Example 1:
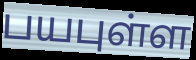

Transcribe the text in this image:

பயபுள்ள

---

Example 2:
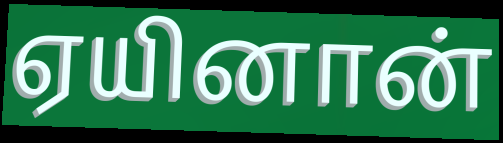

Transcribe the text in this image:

ஏயினான்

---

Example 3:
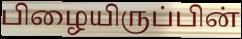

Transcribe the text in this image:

பிழையிருப்பின்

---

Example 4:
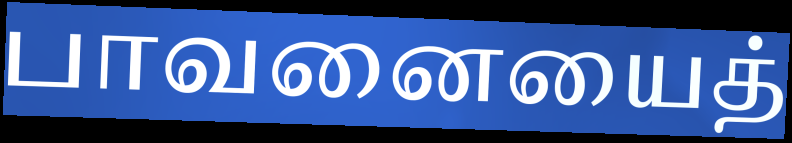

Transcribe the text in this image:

பாவனையைத்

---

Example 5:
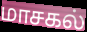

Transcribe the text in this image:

மாசகல்